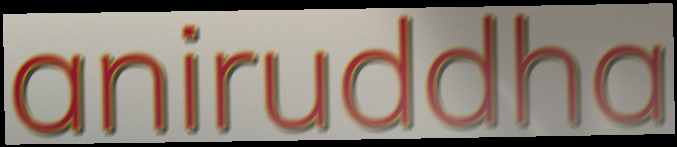
aniruddha